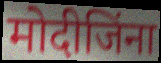
मोदीजिंना